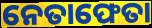
ନେତାଫେତା